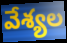
వేశ్యల